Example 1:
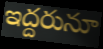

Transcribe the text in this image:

ఇద్దరునూ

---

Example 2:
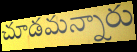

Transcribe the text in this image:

చూడమన్నారు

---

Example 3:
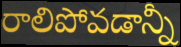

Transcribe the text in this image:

రాలిపోవడాన్నీ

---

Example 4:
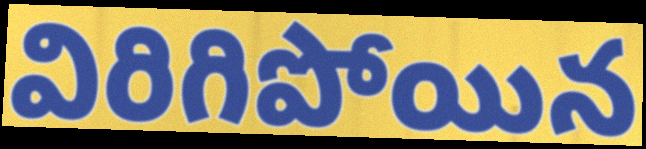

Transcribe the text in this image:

విరిగిపోయిన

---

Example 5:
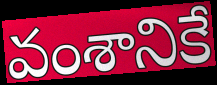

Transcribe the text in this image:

వంశానికే